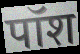
पॉश